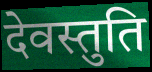
देवस्तुति